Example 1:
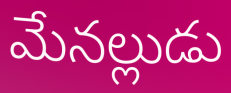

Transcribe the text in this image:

మేనల్లుడు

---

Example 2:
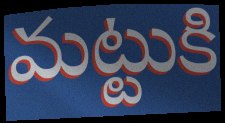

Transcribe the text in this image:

మట్టుకి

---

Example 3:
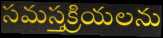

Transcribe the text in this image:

సమస్తక్రియలను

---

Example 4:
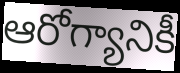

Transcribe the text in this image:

ఆరోగ్యానికీ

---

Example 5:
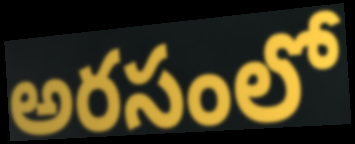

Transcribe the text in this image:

అరసంలో